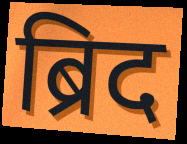
ब्रिद